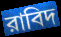
রাবিদ